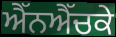
ਐੱਨਐੱਚਕੇ